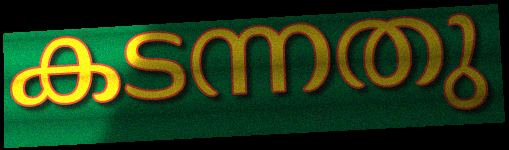
കടന്നതു